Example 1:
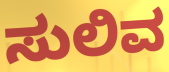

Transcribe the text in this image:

ಸುಲಿವ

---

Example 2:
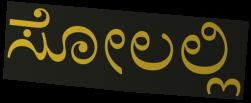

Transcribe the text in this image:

ಸೋಲಲ್ಲಿ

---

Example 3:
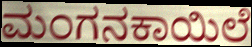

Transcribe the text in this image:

ಮಂಗನಕಾಯಿಲೆ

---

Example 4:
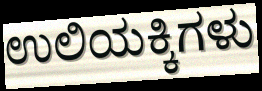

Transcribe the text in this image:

ಉಲಿಯಕ್ಕಿಗಳು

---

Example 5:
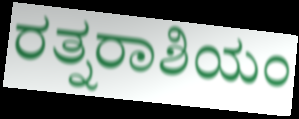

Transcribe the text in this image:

ರತ್ನರಾಶಿಯಂ